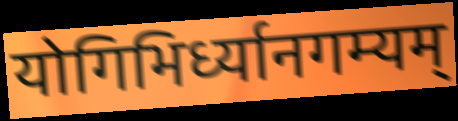
योगिभिर्ध्यानगम्यम्